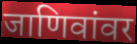
जाणिवांवर